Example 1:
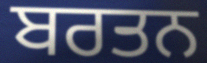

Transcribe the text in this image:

ਬਰਤਨ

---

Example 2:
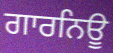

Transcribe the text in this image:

ਗਾਰਨਿਊ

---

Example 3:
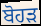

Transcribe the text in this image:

ਬੋਹੜ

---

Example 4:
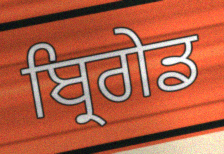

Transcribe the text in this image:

ਬ੍ਰਿਗੇਡ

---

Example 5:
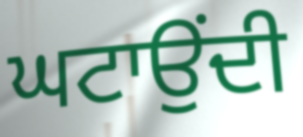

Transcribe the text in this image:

ਘਟਾਉਂਦੀ